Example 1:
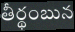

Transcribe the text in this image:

తీర్థంబున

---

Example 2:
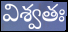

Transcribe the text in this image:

విశ్వతః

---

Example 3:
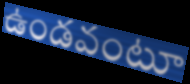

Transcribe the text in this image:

ఉండవంటూ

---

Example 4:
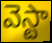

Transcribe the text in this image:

వెస్టా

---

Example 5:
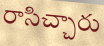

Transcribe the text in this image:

రాసిచ్చారు